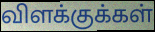
விளக்குக்கள்